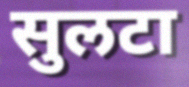
सुलटा